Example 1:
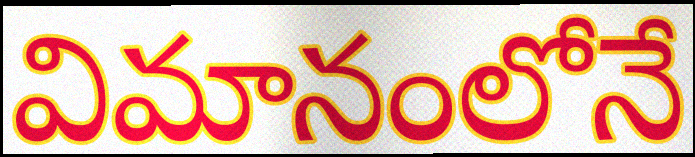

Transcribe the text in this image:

విమానంలోనే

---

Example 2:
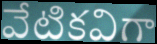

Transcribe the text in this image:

వేటికవిగా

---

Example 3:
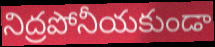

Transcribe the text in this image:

నిద్రపోనీయకుండా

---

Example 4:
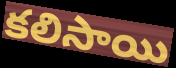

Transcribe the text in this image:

కలిసాయి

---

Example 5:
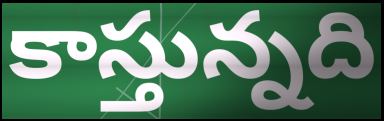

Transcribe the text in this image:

కాస్తున్నది